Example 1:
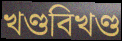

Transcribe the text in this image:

খণ্ডবিখণ্ড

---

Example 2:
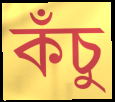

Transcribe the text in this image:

কঁচু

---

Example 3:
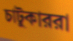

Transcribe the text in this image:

চাটুকাররা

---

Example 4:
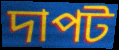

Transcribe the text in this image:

দাপট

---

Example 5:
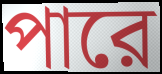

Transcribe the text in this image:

পারে